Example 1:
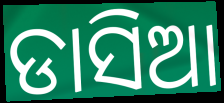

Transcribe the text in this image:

ଡାସିଆ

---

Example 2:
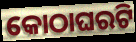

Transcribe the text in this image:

କୋଠାଘରଟି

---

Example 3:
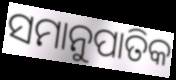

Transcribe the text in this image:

ସମାନୁପାତିକ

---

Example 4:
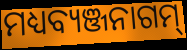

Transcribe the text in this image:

ମଧ୍ୟବ୍ୟଞ୍ଜନାଗମ୍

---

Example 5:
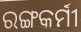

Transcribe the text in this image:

ରଙ୍ଗକର୍ମୀ